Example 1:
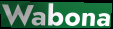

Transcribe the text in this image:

Wabona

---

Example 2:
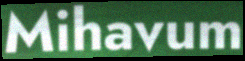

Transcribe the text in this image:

Mihavum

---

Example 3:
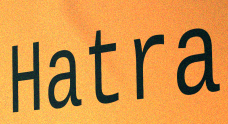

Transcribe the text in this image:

Hatra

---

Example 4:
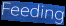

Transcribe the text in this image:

Feeding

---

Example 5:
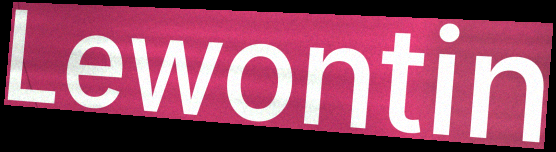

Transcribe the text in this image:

Lewontin